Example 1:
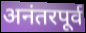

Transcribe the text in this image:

अनंतरपूर्व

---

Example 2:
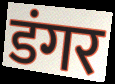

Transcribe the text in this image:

डंगर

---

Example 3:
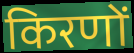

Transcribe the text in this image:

किरणों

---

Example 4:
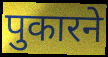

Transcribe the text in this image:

पुकारने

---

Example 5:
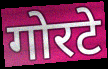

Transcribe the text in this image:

गोरटे